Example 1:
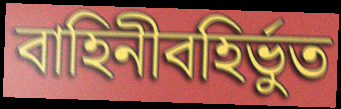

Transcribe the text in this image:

বাহিনীবহির্ভুত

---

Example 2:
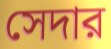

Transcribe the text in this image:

সেদার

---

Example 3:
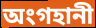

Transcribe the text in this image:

অংগহানী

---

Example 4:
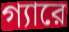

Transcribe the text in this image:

গ্যারে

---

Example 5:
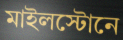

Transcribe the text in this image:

মাইলস্টোনে